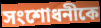
সংশোধনীকে